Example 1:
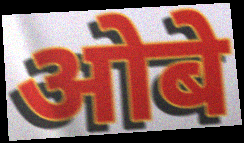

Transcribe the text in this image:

ओबे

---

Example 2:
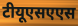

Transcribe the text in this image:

टीयूएसएएस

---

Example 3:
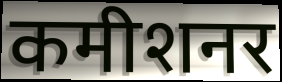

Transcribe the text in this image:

कमीशनर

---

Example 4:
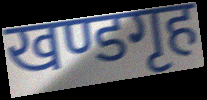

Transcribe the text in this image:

खण्डगृह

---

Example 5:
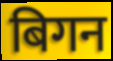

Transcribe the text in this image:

बिगन